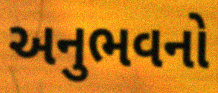
અનુભવનો